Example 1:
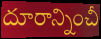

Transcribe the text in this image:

దూరాన్నించీ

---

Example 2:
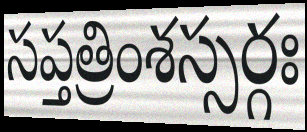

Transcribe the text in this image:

సప్తత్రింశస్సర్గః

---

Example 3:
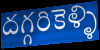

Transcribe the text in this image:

దగ్గరికెళ్ళి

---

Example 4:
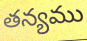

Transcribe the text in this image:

తన్యము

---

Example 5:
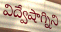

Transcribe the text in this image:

విద్వేషాగ్నిని